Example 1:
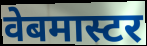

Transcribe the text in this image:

वेबमास्टर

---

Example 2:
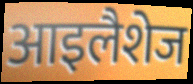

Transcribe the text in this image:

आइलैशेज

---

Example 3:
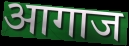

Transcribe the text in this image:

आगाज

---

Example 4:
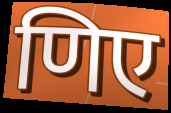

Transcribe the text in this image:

णिए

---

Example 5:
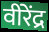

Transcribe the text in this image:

वीरेंद्र